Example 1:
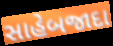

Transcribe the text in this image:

સાહેબજાદા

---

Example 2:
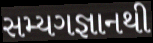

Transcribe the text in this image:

સમ્યગજ્ઞાનથી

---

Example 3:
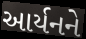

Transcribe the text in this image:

આર્યનને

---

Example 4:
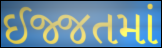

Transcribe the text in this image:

ઈજ્જતમાં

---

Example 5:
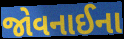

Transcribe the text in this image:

જોવનાઈના